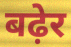
बढ़ेर